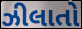
ઝીલાતો